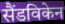
सैंडविकेन